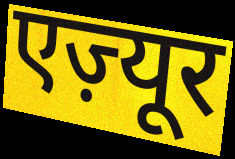
एज़्यूर